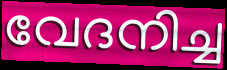
വേദനിച്ച